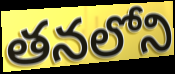
తనలోని